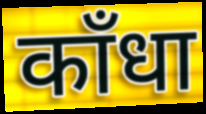
काँधा